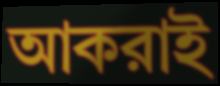
আকরাই